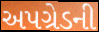
અપગ્રેડની